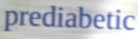
prediabetic